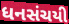
ધનસંચયી